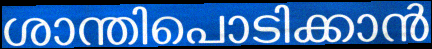
ശാന്തിപൊടിക്കാൻ